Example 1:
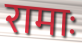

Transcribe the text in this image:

रामाः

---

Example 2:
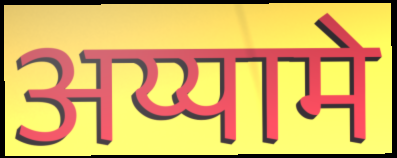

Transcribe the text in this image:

अय्यामे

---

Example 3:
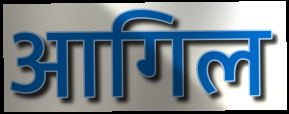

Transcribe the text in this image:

आगिल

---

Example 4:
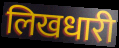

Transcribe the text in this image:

लिखधारी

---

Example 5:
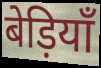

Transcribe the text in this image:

बेड़ियाँ